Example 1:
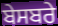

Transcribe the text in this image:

ਬੇਸਬਰੇ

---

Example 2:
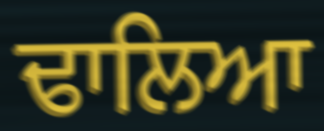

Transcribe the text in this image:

ਢਾਲਿਆ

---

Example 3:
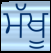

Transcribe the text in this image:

ਮੱਖੂ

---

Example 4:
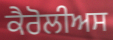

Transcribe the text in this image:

ਕੈਰੋਲੀਅਸ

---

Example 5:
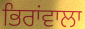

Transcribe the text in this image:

ਭਿਰਾਂਵਾਲਾ